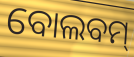
ବୋଲବମ୍